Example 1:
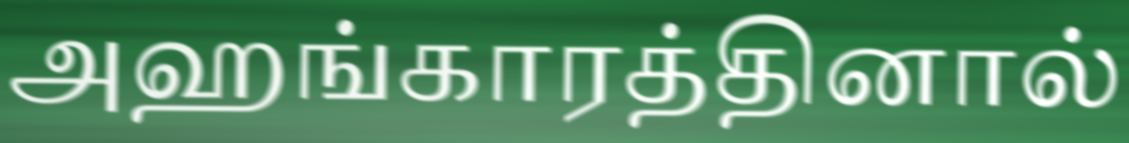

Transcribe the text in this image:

அஹங்காரத்தினால்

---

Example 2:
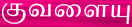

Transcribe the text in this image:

குவளையு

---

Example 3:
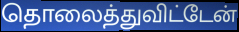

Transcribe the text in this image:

தொலைத்துவிட்டேன்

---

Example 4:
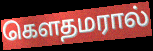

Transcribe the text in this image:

கௌதமரால்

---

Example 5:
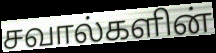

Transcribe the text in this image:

சவால்களின்